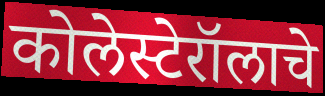
कोलेस्टेरॉलाचे